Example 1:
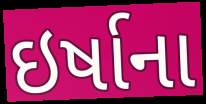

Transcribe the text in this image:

ઇર્ષાના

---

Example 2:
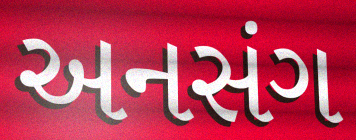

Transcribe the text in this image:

અનસંગ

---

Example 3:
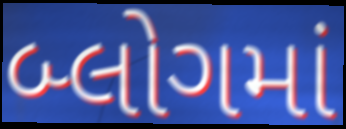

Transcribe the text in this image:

બ્લોગમાં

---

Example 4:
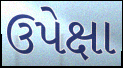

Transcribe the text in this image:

ઉપેક્ષા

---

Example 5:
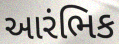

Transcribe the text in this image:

આરંભિક